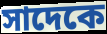
সাদেকে